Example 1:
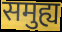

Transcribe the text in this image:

समुह्य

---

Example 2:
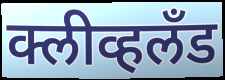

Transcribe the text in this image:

क्लीव्हलँड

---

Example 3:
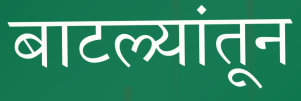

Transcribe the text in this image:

बाटल्यांतून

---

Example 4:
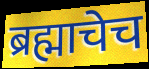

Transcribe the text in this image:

ब्रह्माचेच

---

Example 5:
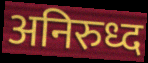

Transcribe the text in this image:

अनिरुध्द